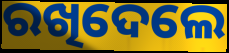
ରଖିଦେଲେ